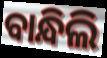
ବାନ୍ଧିଲି